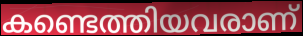
കണ്ടെത്തിയവരാണ്